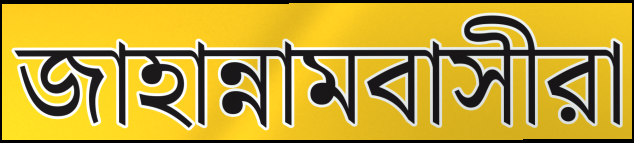
জাহান্নামবাসীরা